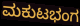
ಮಕುಟಭಂಗ